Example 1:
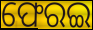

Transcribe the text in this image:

ଫେରଇ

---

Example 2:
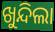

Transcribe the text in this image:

ଖୁନ୍ଦିଲା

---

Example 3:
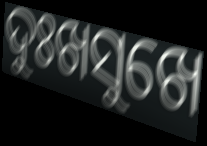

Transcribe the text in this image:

ଦୁଃଖସୁଖେ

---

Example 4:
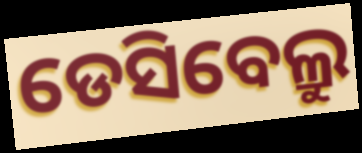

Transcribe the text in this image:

ଡେସିବେଲ୍ରୁ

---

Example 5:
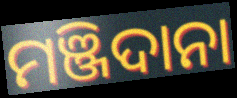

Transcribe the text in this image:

ମଞ୍ଜିଦାନା